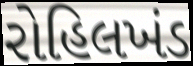
રોહિલખંડ